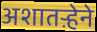
अशातऱ्‍हेने